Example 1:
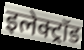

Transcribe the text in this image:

इलेक्ट्रॉड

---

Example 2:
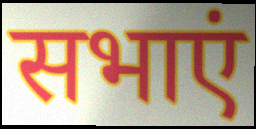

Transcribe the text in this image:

सभाएं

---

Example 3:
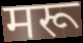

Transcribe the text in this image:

मरू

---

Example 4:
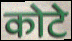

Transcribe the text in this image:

कोटे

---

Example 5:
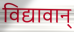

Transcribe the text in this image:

विद्यावान्